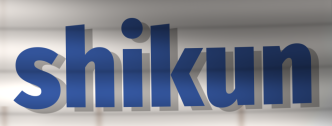
shikun